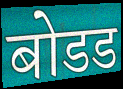
बोडड